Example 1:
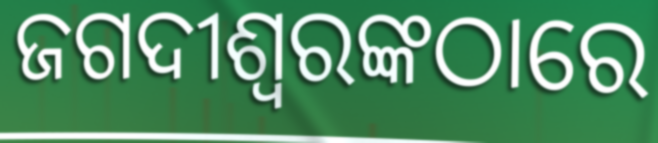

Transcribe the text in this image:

ଜଗଦୀଶ୍ୱରଙ୍କଠାରେ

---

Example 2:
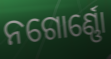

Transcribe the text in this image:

ନଗୋର୍ଣ୍ଣୋ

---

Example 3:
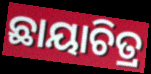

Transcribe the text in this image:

ଛାୟାଚିତ୍ର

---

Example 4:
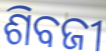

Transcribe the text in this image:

ଶିବଜୀ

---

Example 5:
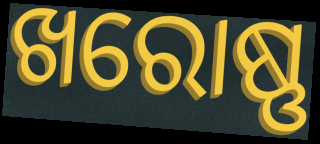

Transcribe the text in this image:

ଖରୋଷ୍ଣ